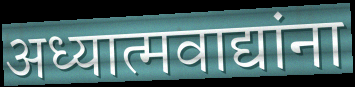
अध्यात्मवाद्यांना